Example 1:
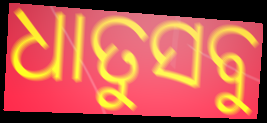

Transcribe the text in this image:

ଧାତୁସବୁ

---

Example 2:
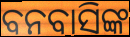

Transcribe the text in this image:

ବନବାସିଙ୍କ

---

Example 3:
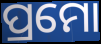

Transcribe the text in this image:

ପ୍ରମୋ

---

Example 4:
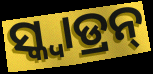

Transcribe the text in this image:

ସ୍କ୍ୱାଡ୍ରନ୍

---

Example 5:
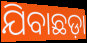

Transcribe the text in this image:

ଯିବାଛଡ଼ା